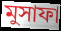
মুসাফা